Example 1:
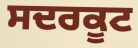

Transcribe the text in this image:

ਸਦਰਕੂਟ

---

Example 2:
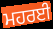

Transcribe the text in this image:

ਮਹਰਈ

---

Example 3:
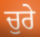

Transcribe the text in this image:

ਚੁਰੇ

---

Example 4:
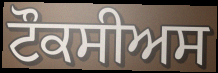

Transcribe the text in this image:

ਟੌਕਸੀਅਸ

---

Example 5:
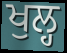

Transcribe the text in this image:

ਖੁਲ੍ਹ